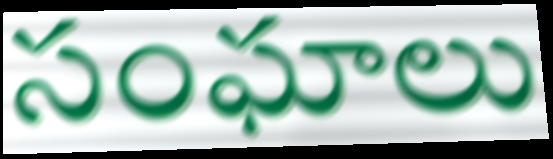
సంఘాలు